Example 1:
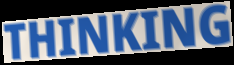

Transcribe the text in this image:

THINKING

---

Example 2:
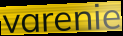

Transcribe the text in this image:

varenie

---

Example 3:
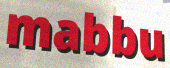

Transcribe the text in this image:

mabbu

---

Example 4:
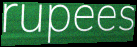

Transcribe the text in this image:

rupees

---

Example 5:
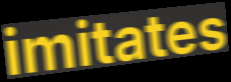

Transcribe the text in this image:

imitates